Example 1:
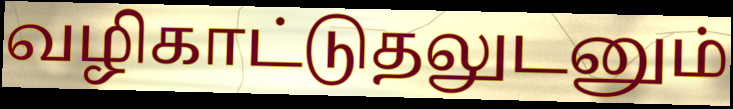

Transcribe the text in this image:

வழிகாட்டுதலுடனும்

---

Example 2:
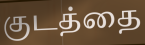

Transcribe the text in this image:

குடத்தை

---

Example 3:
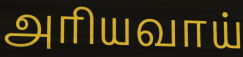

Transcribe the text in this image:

அரியவாய்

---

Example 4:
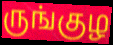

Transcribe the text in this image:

ருங்குழ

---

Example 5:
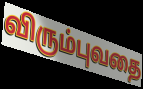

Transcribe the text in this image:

விரும்புவதை